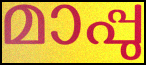
മാപ്പു